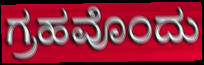
ಗ್ರಹವೊಂದು